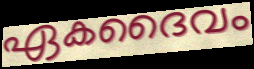
ഏകദൈവം